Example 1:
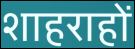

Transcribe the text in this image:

शाहराहों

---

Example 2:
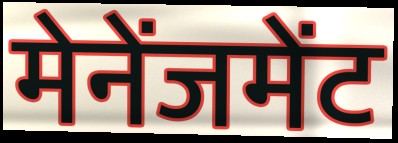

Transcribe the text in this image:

मेनेंजमेंट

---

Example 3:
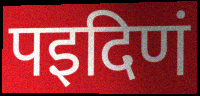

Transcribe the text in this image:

पइदिणं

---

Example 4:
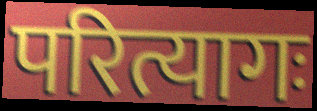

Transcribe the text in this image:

परित्यागः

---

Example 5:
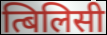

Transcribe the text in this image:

त्बिलिसी